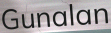
Gunalan